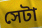
সেটা